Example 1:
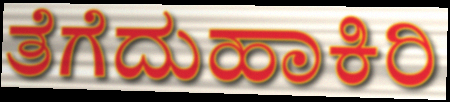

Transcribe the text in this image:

ತೆಗೆದುಹಾಕಿರಿ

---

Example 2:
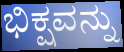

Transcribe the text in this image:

ಭಿಕ್ಷವನ್ನು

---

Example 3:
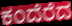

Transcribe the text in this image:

ಕಂದೆರೆದ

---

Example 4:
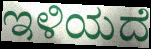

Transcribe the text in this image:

ಇಳಿಯದೆ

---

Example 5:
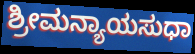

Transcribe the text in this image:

ಶ್ರೀಮನ್ಯಾಯಸುಧಾ